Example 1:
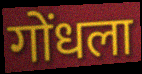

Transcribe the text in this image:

गोंधला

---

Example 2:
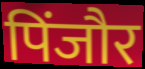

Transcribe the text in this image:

पिंजौर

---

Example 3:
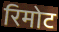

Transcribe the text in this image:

रिमोट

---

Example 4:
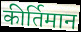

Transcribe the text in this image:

कीर्तिमान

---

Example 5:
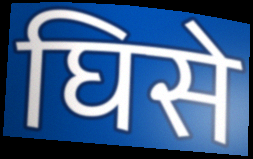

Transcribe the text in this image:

घिसे